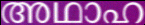
അഥാഹ